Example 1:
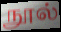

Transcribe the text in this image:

நூல்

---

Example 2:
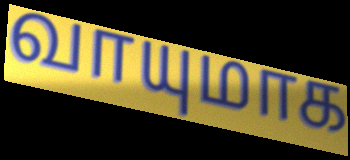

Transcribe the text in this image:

வாயுமாக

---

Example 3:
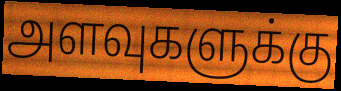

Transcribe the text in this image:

அளவுகளுக்கு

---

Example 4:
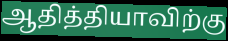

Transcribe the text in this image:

ஆதித்தியாவிற்கு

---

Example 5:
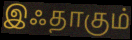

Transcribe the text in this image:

இஃதாகும்